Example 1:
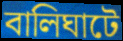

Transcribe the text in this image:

বালিঘাটে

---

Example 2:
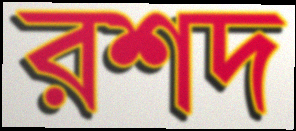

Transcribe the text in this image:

রশদ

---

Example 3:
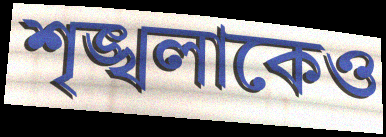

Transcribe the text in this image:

শৃঙ্খলাকেও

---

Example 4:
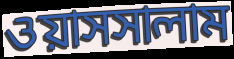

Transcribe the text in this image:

ওয়াসসালাম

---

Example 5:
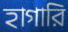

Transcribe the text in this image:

হাগারি